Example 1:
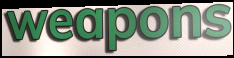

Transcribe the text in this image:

weapons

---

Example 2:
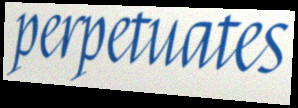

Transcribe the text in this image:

perpetuates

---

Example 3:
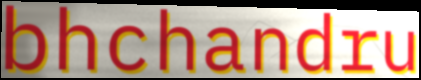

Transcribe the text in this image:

bhchandru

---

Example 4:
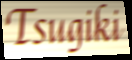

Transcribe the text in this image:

Tsugiki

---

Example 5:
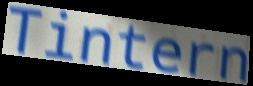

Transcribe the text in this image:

Tintern